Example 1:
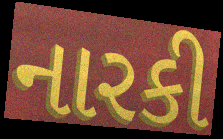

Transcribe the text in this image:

નારકી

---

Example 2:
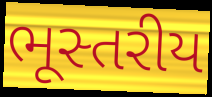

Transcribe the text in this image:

ભૂસ્તરીય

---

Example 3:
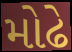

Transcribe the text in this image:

મોઢે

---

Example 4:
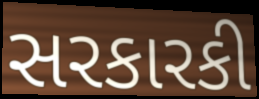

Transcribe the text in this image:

સરકારકી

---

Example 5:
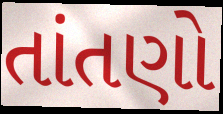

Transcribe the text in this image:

તાંતણો